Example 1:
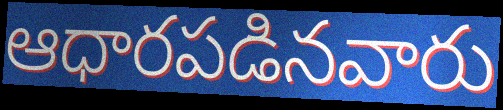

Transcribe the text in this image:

ఆధారపడినవారు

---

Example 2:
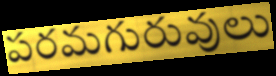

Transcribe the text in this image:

పరమగురువులు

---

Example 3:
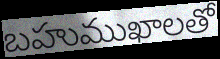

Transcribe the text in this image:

బహుముఖాలతో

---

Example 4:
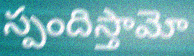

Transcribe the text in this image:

స్పందిస్తామో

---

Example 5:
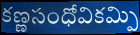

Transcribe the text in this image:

కణ్ణసంధోవికమ్పి